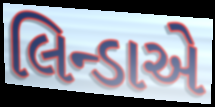
લિન્ડાએ